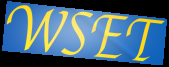
WSET